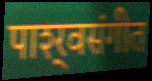
पाश्र्वसंगीत